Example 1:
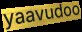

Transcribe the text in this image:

yaavudoo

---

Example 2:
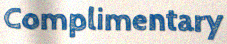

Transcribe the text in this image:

Complimentary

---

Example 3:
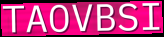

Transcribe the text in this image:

TAOVBSI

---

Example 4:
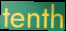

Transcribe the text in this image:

tenth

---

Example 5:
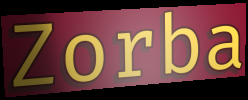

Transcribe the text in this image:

Zorba